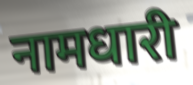
नामधारी